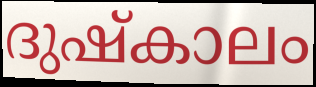
ദുഷ്കാലം